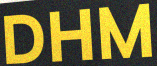
DHM